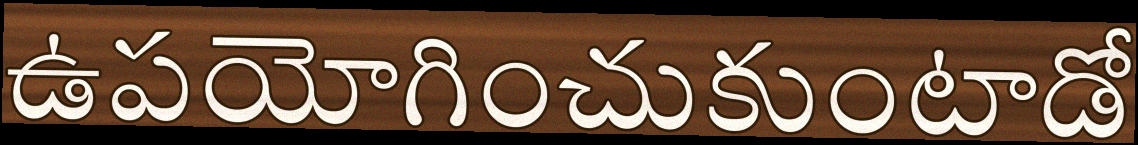
ఉపయోగించుకుంటాడో